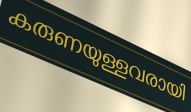
കരുണയുള്ളവരായി